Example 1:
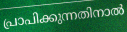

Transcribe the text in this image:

പ്രാപിക്കുന്നതിനാൽ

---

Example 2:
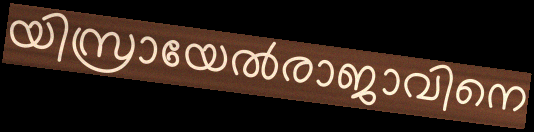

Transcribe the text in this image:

യിസ്രായേൽരാജാവിനെ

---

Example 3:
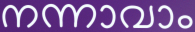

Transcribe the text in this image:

നന്നാവാം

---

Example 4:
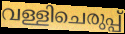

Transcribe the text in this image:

വള്ളിചെരുപ്പ്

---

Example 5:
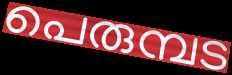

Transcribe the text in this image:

പെരുമ്പട